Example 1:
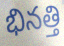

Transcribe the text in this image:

భినత్తి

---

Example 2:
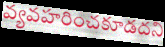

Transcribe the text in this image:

వ్యవహరించకూడదని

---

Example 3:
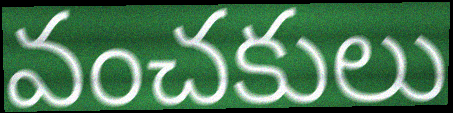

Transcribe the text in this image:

వంచకులు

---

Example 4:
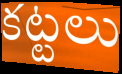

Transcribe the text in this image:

కట్టలు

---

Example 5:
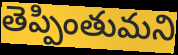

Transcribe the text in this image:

తెప్పింతుమని